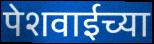
पेशवाईच्या